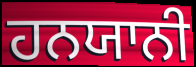
ਹਨਯਾਨੀ